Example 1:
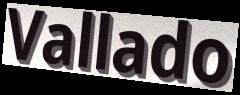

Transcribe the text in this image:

Vallado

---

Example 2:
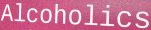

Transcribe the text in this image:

Alcoholics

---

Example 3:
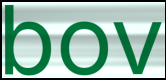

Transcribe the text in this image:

bov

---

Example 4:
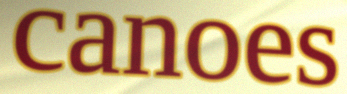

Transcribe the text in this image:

canoes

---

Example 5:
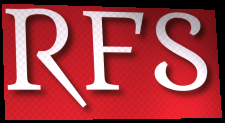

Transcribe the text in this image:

RFS